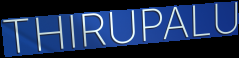
THIRUPALU